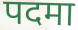
पदमा